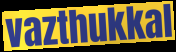
vazthukkal